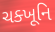
ચક્ખૂનિ